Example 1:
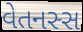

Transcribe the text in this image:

વેતનસ્સ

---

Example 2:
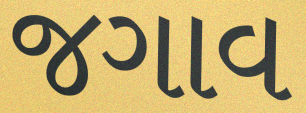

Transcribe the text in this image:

જગાવ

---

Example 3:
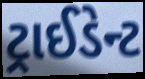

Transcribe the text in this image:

ટ્રાઈડેન્ટ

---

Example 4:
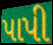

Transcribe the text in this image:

પાપી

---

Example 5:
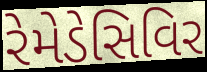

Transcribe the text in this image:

રેમેડેસિવિર